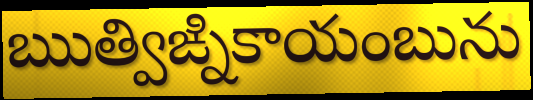
ఋత్విఙ్నికాయంబును